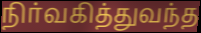
நிர்வகித்துவந்த